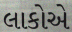
લાકોએ